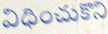
విధించుకొని